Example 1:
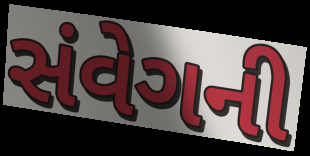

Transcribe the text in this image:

સંવેગની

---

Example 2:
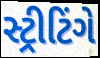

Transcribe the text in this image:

સ્ટ્રીટિંગે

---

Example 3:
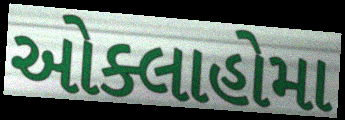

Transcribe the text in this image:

ઓક્લાહોમા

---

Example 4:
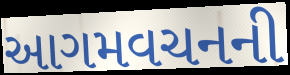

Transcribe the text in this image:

આગમવચનની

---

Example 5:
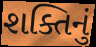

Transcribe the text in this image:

શક્તિનું